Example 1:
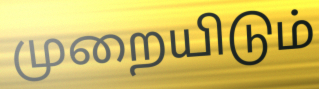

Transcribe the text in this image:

முறையிடும்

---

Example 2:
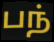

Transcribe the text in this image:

பந்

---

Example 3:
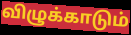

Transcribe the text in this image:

விழுக்காடும்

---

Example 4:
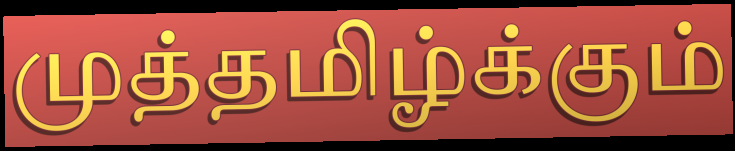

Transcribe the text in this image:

முத்தமிழ்க்கும்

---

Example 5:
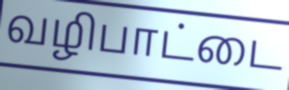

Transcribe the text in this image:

வழிபாட்டை